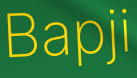
Bapji